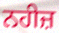
ਨਹੀਜ਼